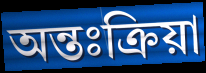
অন্তঃক্রিয়া